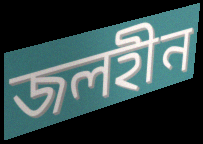
জলহীন